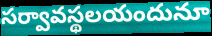
సర్వావస్థలయందునూ